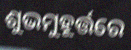
ଶୁଭମୁହୂର୍ତ୍ତରେ